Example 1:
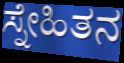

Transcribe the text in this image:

ಸ್ನೇಹಿತನ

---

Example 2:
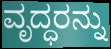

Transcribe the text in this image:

ವೃದ್ಧರನ್ನು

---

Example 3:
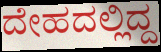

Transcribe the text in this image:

ದೇಹದಲ್ಲಿದ್ದ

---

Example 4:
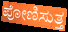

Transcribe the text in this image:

ಪೋಣಿಸುತ್ತ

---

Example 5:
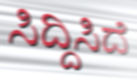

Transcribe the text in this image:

ಸಿದ್ದಿಸಿದೆ